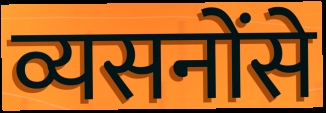
व्यसनोंसे